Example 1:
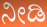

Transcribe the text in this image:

ನೀಡಿ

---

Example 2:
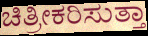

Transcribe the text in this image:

ಚಿತ್ರೀಕರಿಸುತ್ತಾ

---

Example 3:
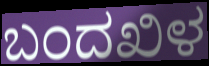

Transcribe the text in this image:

ಬಂದಖಿಳ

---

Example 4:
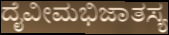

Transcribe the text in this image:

ದೈವೀಮಭಿಜಾತಸ್ಯ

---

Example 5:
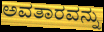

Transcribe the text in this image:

ಅವತಾರವನ್ನು